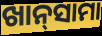
ଖାନ୍‍ସାମା